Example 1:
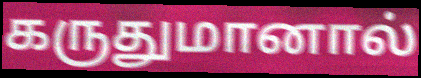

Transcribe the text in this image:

கருதுமானால்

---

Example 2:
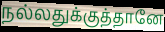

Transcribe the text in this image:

நல்லதுக்குத்தானே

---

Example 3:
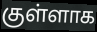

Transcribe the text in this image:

குள்ளாக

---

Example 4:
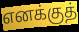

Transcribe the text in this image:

எனக்குத்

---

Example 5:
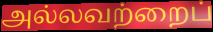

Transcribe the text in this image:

அல்லவற்றைப்